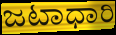
ಜಟಾಧಾರಿ